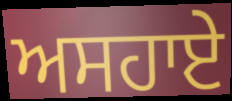
ਅਸਹਾਏ